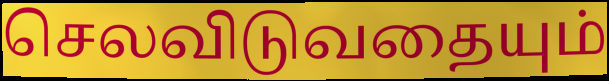
செலவிடுவதையும்